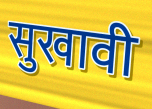
सुखावी